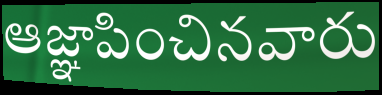
ఆజ్ఞాపించినవారు